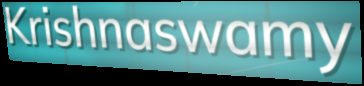
Krishnaswamy